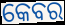
କେବର